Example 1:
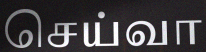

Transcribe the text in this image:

செய்வா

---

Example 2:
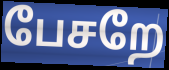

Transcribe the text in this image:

பேசறே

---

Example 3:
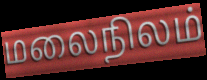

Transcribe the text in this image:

மலைநிலம்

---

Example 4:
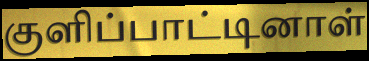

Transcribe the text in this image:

குளிப்பாட்டினாள்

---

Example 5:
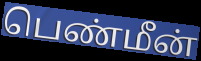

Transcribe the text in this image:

பெண்மீன்